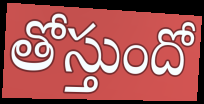
తోస్తుందో